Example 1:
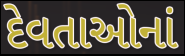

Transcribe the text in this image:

દેવતાઓનાં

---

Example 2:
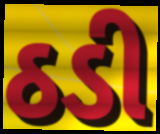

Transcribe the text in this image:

ઠડી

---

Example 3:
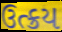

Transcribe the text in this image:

ઉત્ક્રય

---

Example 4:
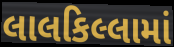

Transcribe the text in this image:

લાલકિલ્લામાં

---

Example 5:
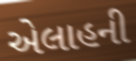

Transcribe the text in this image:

એલાહની